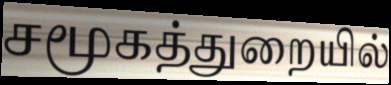
சமூகத்துறையில்